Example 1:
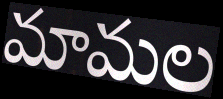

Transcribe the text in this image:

మామల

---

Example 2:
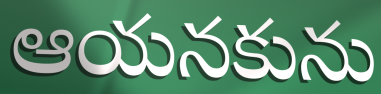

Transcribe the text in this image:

ఆయనకును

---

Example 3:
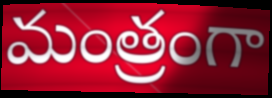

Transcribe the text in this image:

మంత్రంగా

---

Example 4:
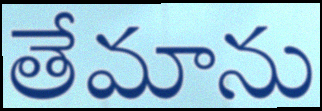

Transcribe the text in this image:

తేమాను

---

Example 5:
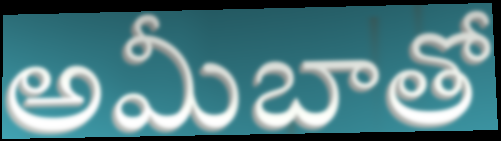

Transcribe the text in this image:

అమీబాతో